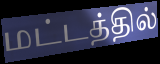
மட்டத்தில்